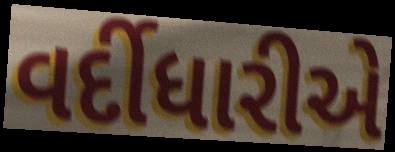
વર્દીધારીએ